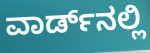
ವಾರ್ಡ್‌ನಲ್ಲಿ